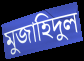
মুজাহিদুল